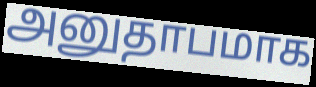
அனுதாபமாக